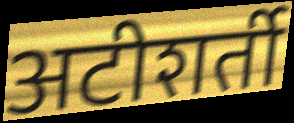
अटीशर्ती